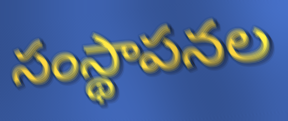
సంస్థాపనల